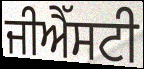
ਜੀਐੱਸਟੀ